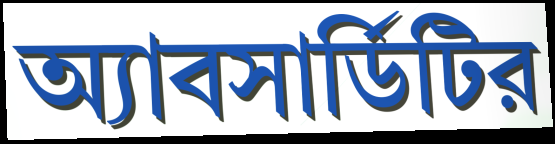
অ্যাবসার্ডিটির